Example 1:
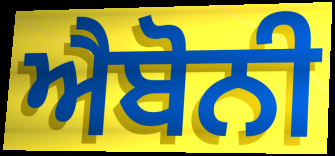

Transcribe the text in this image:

ਐਬੋਨੀ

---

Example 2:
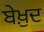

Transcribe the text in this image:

ਬੇਖ਼ੁਦ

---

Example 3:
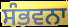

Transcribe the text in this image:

ਸੰਭਵਨਾ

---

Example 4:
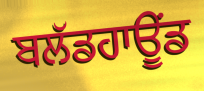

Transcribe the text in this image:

ਬਲੱਡਹਾਊਂਡ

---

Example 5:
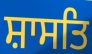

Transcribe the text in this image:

ਸ਼ਾਸਤਿ